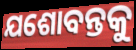
ଯଶୋବନ୍ତକୁ